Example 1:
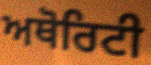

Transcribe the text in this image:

ਅਥੋਰਿਟੀ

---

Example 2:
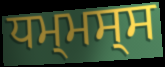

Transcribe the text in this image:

ਧਮ੍ਮਸ੍ਸ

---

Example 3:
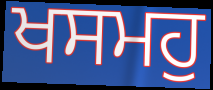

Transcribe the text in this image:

ਖਸਮਹੁ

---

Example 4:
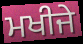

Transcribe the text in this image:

ਮਖੀਜੇ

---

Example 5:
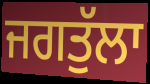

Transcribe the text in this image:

ਜਗਤੁੱਲਾ